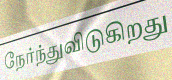
நேர்ந்துவிடுகிறது